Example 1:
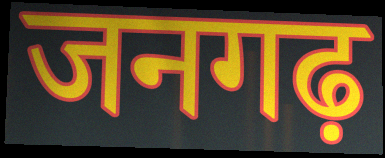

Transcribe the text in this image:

जनगढ़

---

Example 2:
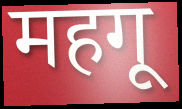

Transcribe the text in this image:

महगू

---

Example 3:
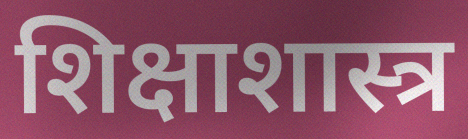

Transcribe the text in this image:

शिक्षाशास्त्र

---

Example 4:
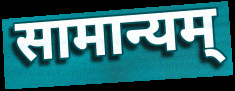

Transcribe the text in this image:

सामान्यम्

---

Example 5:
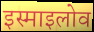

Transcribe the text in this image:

इस्माइलोव